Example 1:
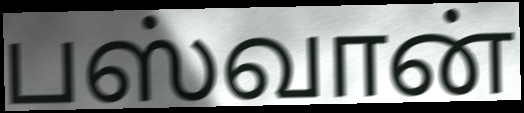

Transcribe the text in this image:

பஸ்வான்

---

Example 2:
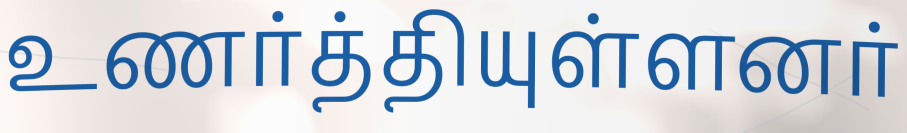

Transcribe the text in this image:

உணர்த்தியுள்ளனர்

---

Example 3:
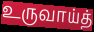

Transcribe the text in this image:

உருவாய்த்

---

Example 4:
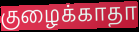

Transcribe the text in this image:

குழைக்காதா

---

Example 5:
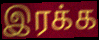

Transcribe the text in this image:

இரக்க